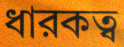
ধারকত্ব